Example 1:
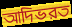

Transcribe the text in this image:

আদিভরত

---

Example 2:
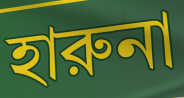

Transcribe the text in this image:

হারুনা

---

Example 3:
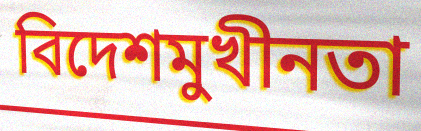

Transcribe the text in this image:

বিদেশমুখীনতা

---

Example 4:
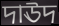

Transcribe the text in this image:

দাঊদ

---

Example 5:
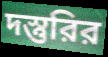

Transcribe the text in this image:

দস্তুরির